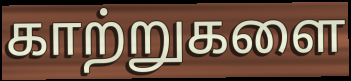
காற்றுகளை